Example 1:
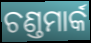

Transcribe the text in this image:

ଚଣ୍ଡମାର୍କ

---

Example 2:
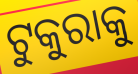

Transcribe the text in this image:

ଟୁକୁରାକୁ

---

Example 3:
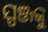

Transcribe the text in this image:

ସ୍ପଞ୍ଜକୁ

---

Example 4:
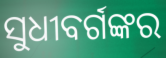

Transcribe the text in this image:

ସୁଧୀବର୍ଗଙ୍କର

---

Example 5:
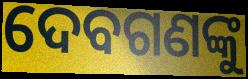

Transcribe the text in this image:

ଦେବଗଣଙ୍କୁ